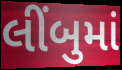
લીંબુમાં